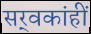
सर्वकांहीं